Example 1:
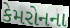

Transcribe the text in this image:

કેમરોનના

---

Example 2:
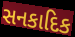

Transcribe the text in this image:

સનકાદિક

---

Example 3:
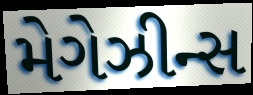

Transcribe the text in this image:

મેગેઝીન્સ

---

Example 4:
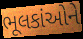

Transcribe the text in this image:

ભૂલકાંઓને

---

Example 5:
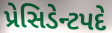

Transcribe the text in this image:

પ્રેસિડેન્ટપદે